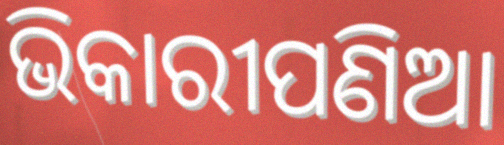
ଭିକାରୀପଣିଆ